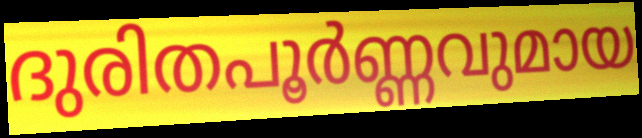
ദുരിതപൂർണ്ണവുമായ